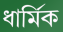
ধার্মিক